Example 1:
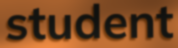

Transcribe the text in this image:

student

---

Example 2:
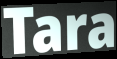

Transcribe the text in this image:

Tara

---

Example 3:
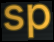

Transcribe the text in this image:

sp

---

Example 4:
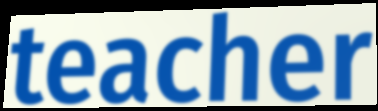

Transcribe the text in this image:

teacher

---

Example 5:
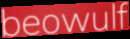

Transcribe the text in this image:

beowulf